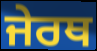
ਜੇਰਥ